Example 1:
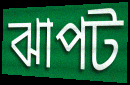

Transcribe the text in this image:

ঝাপট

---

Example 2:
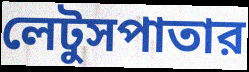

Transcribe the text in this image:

লেটুসপাতার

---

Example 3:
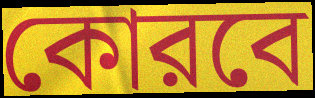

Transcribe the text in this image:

কোরবে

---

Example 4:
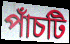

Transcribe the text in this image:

পাঁচটি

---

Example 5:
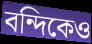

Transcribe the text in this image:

বন্দিকেও